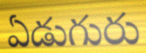
ఏడుగురు